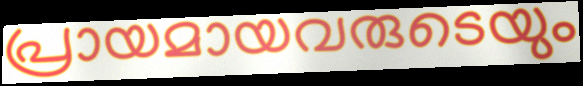
പ്രായമായവരുടെയും